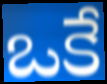
ఒకే